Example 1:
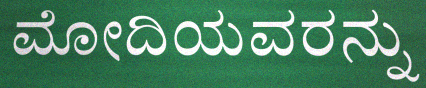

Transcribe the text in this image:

ಮೋದಿಯವರನ್ನು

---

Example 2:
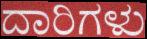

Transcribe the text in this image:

ದಾರಿಗಳು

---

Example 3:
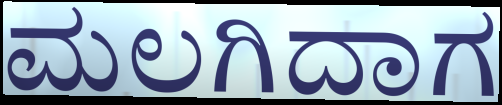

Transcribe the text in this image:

ಮಲಗಿದಾಗ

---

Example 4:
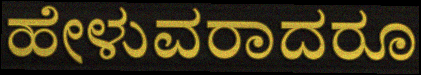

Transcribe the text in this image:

ಹೇಳುವರಾದರೂ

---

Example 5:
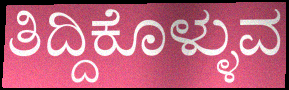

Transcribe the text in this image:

ತಿದ್ದಿಕೊಳ್ಳುವ